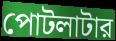
পোটলাটার